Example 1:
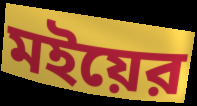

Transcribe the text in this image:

মইয়ের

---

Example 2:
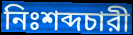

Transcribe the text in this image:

নিঃশব্দচারী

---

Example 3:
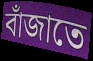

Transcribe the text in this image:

বাঁজাতে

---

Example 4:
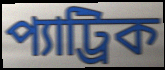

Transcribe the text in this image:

প্যাট্রিক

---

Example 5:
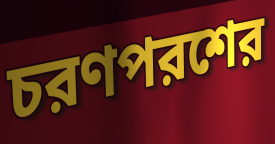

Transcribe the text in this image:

চরণপরশের